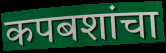
कपबशांचा